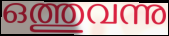
ഒത്തുവന്നു